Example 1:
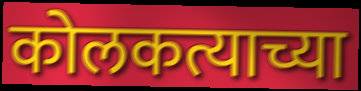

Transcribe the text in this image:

कोलकत्याच्या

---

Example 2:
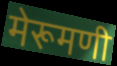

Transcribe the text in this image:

मेरूमणी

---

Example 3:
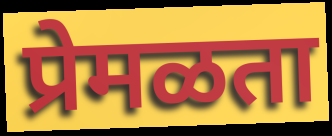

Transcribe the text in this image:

प्रेमळता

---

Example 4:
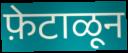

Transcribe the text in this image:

फ़ेटाळून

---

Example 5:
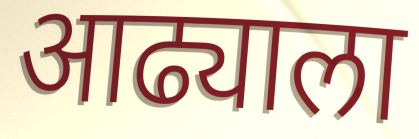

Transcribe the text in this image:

आढ्याला